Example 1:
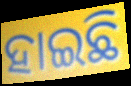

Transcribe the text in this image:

ହାଇଛି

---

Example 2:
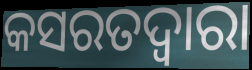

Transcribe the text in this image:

କସରତଦ୍ୱାରା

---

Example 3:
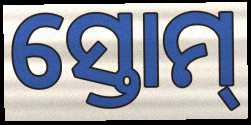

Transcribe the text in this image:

ସ୍ତୋମ୍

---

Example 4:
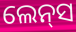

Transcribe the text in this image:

ଲେନ୍‍ସ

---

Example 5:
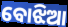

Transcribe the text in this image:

ବୋଝିଆ